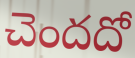
చెందదో